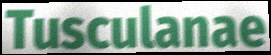
Tusculanae